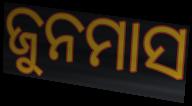
ଜୁନମାସ